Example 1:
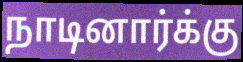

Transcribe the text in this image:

நாடினார்க்கு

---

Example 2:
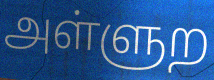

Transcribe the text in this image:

அள்ளுற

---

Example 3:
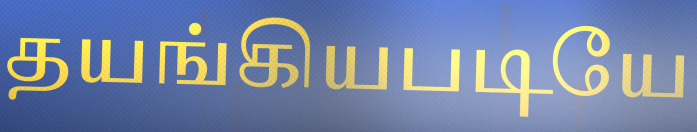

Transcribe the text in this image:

தயங்கியபடியே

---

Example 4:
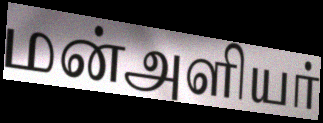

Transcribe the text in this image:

மன்அளியர்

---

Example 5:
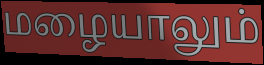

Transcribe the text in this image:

மழையாலும்